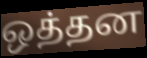
ஒத்தன